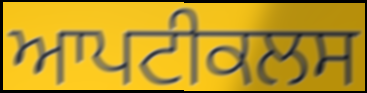
ਆਪਟੀਕਲਸ